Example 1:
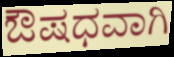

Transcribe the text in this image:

ಔಷಧವಾಗಿ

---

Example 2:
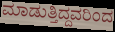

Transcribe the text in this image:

ಮಾಡುತ್ತಿದ್ದವರಿಂದ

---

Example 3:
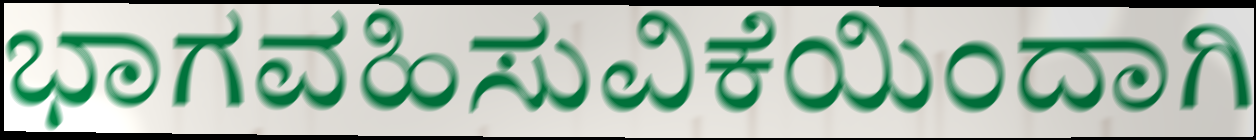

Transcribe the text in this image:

ಭಾಗವಹಿಸುವಿಕೆಯಿಂದಾಗಿ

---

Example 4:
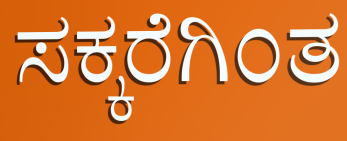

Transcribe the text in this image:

ಸಕ್ಕರೆಗಿಂತ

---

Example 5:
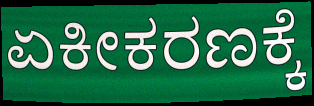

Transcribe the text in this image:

ಏಕೀಕರಣಕ್ಕೆ